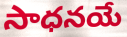
సాధనయే